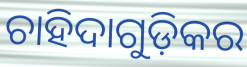
ଚାହିଦାଗୁଡ଼ିକର